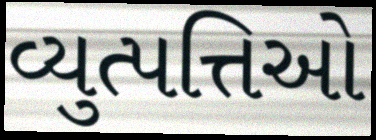
વ્યુત્પત્તિઓ